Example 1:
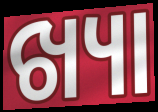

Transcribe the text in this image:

ଖ୍ୟା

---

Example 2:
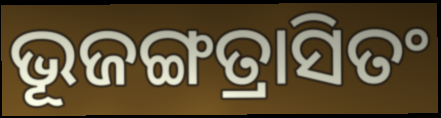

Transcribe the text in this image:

ଭୂଜଙ୍ଗତ୍ରାସିତଂ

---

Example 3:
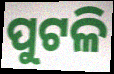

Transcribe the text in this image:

ପୁଟଳି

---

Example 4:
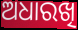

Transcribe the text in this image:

ଅଧାରଖି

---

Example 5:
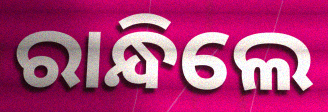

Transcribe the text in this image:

ରାନ୍ଧିଲେ